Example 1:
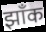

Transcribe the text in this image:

झाँक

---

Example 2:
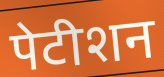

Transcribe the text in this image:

पेटीशन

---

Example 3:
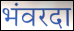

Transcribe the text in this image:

भंवरदा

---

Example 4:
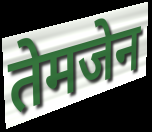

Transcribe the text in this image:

तेमजेन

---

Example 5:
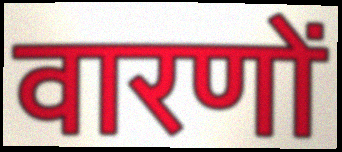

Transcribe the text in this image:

वारणों